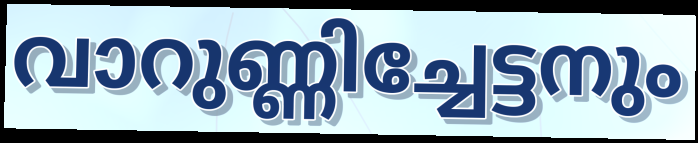
വാറുണ്ണിച്ചേട്ടനും